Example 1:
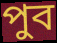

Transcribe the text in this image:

পুব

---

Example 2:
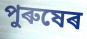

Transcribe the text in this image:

পুৰুষেৰ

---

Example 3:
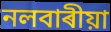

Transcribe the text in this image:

নলবাৰীয়া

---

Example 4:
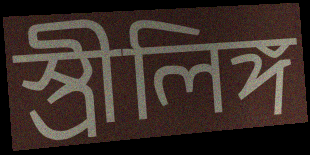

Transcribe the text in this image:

স্ত্ৰীলিঙ্গ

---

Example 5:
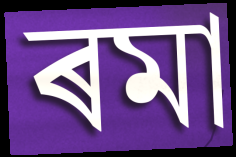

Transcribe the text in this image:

ৰমা